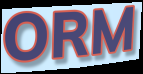
ORM